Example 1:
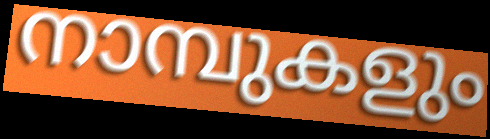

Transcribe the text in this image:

നാമ്പുകളും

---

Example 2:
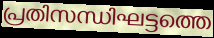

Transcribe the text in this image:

പ്രതിസന്ധിഘട്ടത്തെ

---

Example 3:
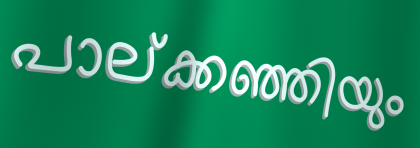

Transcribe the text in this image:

പാല്ക്കഞ്ഞിയും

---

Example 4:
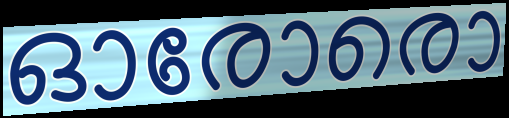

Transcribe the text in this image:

ഓരോരൊ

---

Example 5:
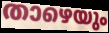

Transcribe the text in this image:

താഴെയും